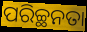
ପରିଚ୍ଛନତା